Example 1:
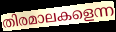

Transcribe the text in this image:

തിരമാലകളെന്ന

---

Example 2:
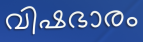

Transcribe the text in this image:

വിഷഭാരം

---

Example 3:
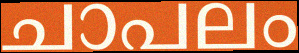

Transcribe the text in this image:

ചാപലം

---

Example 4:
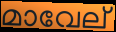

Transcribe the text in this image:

മാവേല്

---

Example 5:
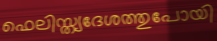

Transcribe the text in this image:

ഫെലിസ്ത്യദേശത്തുപോയി